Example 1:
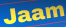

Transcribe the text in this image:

Jaam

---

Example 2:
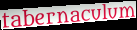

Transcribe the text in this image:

tabernaculum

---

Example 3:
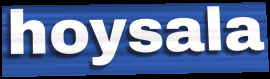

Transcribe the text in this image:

hoysala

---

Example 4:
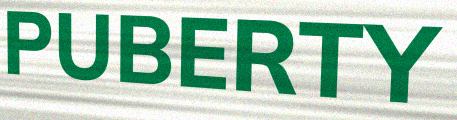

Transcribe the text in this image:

PUBERTY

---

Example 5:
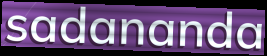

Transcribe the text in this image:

sadananda